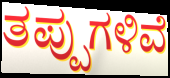
ತಪ್ಪುಗಳಿವೆ